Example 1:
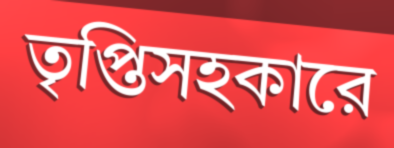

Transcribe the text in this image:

তৃপ্তিসহকারে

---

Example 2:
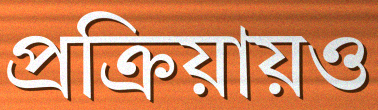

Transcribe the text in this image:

প্রক্রিয়ায়ও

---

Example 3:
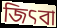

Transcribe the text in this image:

জিৎবা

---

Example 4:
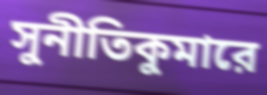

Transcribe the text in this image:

সুনীতিকুমারে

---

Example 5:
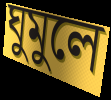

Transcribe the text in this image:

ঘুমুলে